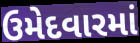
ઉમેદવારમાં